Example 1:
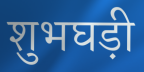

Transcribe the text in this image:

शुभघड़ी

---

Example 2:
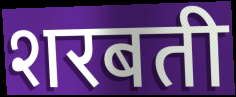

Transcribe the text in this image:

शरबती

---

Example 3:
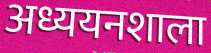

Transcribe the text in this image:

अध्ययनशाला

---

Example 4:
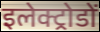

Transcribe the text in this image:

इलेक्ट्रोडों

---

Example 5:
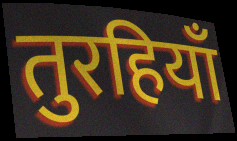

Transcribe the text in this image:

तुरहियाँ